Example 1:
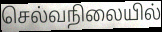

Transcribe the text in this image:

செல்வநிலையில்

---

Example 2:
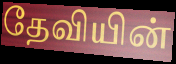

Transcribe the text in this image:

தேவியின்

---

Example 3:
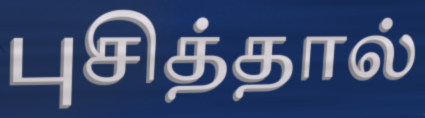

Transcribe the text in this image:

புசித்தால்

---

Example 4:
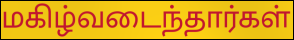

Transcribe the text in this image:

மகிழ்வடைந்தார்கள்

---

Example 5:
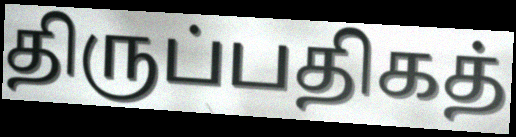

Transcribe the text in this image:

திருப்பதிகத்